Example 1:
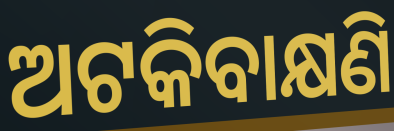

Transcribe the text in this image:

ଅଟକିବାକ୍ଷଣି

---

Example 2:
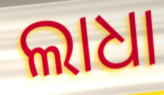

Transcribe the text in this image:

ଲାଧା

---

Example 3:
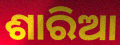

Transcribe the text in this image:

ଶାରିଆ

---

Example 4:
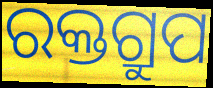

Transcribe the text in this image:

ରକ୍ତଗ୍ରୁପ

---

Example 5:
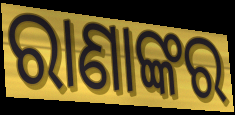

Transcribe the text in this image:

ରାଣାଙ୍କର